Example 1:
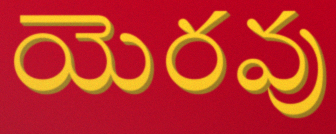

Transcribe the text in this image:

యెరవు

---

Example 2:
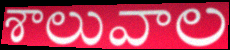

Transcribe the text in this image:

శాలువాల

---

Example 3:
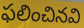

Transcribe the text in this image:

ఫలించినవి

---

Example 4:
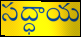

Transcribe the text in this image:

సద్ధాయ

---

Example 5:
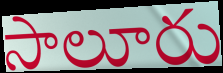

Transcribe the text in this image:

సాలూరు